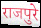
राजपुरे